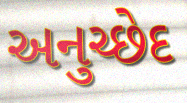
અનુચ્છેદ